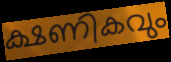
ക്ഷണികവും